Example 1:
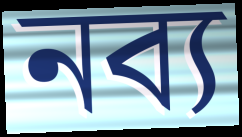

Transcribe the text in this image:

নব্য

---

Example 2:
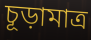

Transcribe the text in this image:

চূড়ামাত্র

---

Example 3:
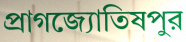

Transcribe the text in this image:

প্রাগজ্যোতিষপুর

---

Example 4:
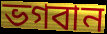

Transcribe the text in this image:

ভগবান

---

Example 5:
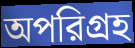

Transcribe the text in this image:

অপরিগ্রহ